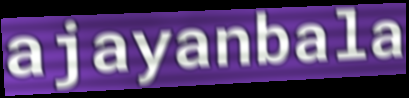
ajayanbala